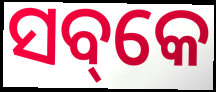
ସବ୍‌କେ